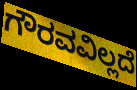
ಗೌರವವಿಲ್ಲದೆ